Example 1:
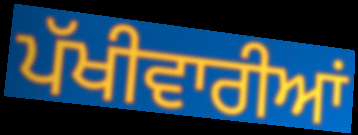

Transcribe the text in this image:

ਪੱਖੀਵਾਰੀਆਂ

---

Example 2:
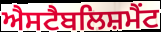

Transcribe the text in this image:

ਐਸਟੈਬਲਿਸ਼ਮੈਂਟ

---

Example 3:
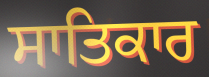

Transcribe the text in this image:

ਸਾਤਿਕਾਰ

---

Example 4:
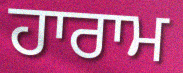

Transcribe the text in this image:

ਹਾਰਾਮ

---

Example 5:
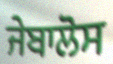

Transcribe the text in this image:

ਜੇਬਾਲੋਸ